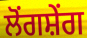
ਲੋਂਗਸ਼ੇਂਗ